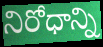
నిరోధాన్ని